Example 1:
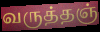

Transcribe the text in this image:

வருத்தஞ்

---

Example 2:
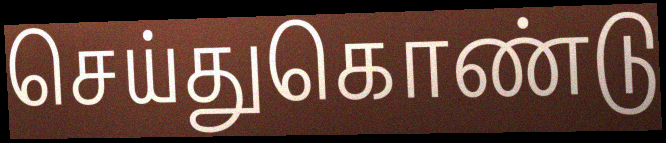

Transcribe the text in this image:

செய்துகொண்டு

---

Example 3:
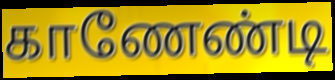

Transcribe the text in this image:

காணேண்டி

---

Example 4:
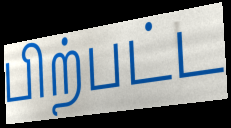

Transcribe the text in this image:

பிற்பட்ட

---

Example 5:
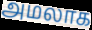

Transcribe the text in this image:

அமலாக